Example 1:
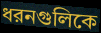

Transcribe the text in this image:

ধরনগুলিকে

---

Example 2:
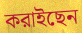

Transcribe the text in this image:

করাইছেন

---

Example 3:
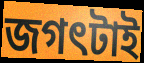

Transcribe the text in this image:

জগৎটাই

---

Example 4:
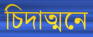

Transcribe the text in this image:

চিদাত্মনে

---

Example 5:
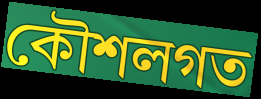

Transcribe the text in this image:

কৌশলগত